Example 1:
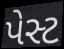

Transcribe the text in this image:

પેસ્ટ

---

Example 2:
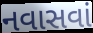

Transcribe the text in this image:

નવાસવાં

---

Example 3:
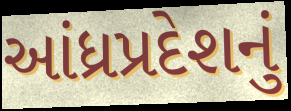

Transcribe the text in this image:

આંધ્રપ્રદેશનું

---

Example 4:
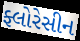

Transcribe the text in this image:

ફ્લોરેસીન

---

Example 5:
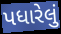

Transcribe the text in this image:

પધારેલું